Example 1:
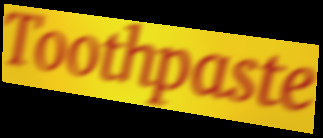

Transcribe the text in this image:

Toothpaste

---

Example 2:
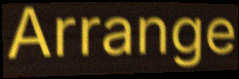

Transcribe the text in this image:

Arrange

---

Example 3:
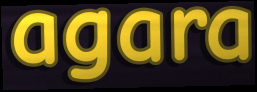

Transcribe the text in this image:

agara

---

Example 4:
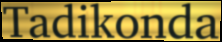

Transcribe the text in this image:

Tadikonda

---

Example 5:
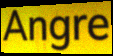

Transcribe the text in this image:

Angre